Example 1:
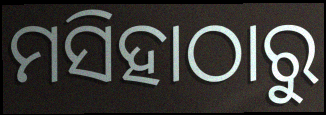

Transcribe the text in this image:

ମସିହାଠାରୁ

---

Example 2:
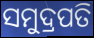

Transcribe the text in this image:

ସମୁଦ୍ରପତି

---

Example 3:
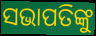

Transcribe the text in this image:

ସଭାପତିଙ୍କୁ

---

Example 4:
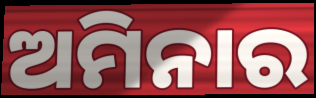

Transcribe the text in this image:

ଅମିନାର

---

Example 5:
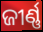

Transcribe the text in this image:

ଜୀର୍ଣ୍ଣ